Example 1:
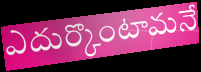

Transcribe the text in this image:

ఎదుర్కొంటామనే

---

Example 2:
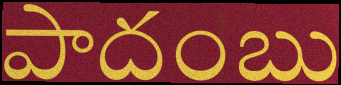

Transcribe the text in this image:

పాదంబు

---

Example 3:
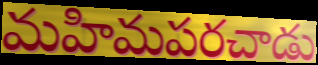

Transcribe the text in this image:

మహిమపరచాడు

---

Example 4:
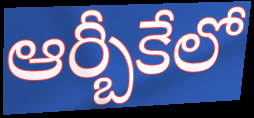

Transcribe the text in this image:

ఆర్బీకేలో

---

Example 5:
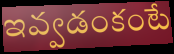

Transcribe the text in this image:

ఇవ్వడంకంటే